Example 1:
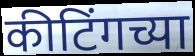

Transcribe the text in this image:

कीटिंगच्या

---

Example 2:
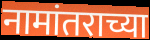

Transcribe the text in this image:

नामांतराच्या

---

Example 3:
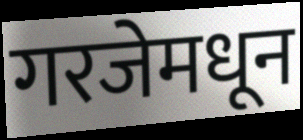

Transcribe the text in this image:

गरजेमधून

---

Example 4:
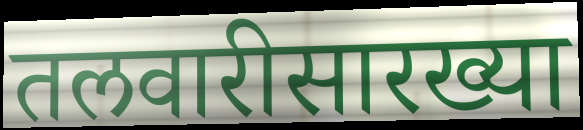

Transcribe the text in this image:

तलवारीसारख्या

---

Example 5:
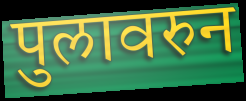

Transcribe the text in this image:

पुलावरुन